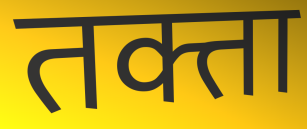
तक्ता